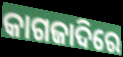
କାଗଜାଦିରେ